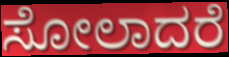
ಸೋಲಾದರೆ